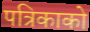
पत्रिकाको